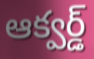
ఆక్వర్డ్